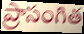
ప్రాసంగిత